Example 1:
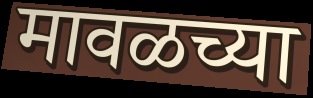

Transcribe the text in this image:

मावळच्या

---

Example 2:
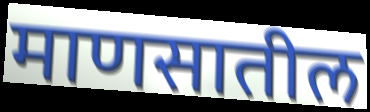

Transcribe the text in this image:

माणसातील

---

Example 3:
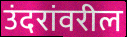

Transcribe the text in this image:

उंदरांवरील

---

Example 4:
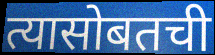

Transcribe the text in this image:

त्यासोबतची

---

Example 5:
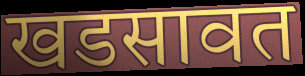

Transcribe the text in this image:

खडसावत